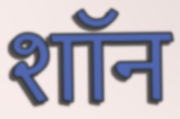
शॉन